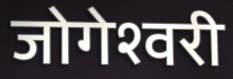
जोगेश्वरी